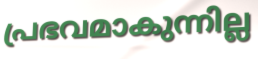
പ്രഭവമാകുന്നില്ല